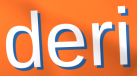
deri